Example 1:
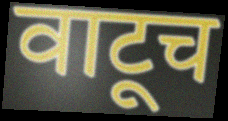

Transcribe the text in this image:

वाटूच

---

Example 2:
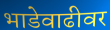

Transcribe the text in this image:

भाडेवाढीवर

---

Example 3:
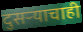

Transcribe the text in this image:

दुसऱ्याचाही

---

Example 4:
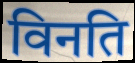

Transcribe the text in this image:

विनति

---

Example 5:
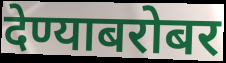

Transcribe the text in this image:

देण्याबरोबर